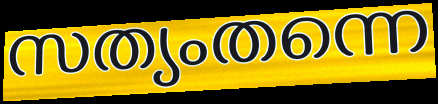
സത്യംതന്നെ